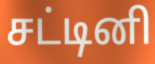
சட்டினி